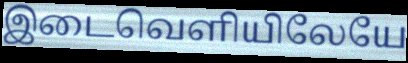
இடைவெளியிலேயே